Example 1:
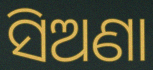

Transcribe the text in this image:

ସିଅଣା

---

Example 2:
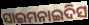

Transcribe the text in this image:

ସାଇମନାଇଦିସ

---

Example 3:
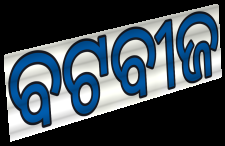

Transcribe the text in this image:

ବଟବୀଜ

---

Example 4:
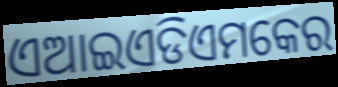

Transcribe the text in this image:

ଏଆଇଏଡିଏମକେର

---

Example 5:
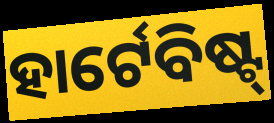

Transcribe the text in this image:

ହାର୍ଟେବିଷ୍ଟ୍